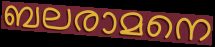
ബലരാമനെ